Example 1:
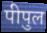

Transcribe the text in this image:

पीपुल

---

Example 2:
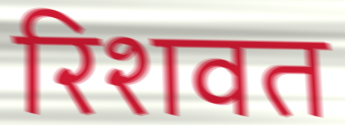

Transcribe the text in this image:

रिशवत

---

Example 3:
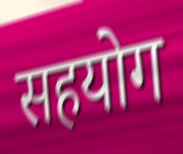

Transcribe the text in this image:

सहयोग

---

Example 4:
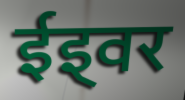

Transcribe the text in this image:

ईइ्वर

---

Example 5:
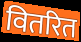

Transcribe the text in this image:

वितरित